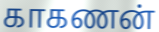
காகணன்